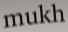
mukh